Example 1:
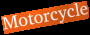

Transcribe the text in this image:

Motorcycle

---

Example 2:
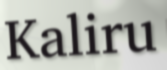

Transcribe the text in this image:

Kaliru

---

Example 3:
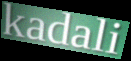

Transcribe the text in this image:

kadali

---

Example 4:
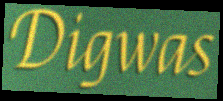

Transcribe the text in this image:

Digwas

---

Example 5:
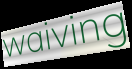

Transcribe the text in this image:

waiving